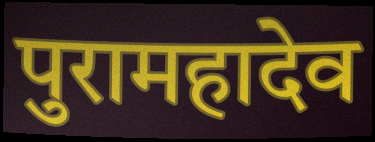
पुरामहादेव